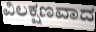
ವಿಲಕ್ಷಣವಾದ